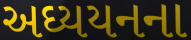
અઘ્યયનના